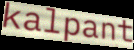
kalpant